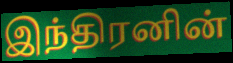
இந்திரனின்